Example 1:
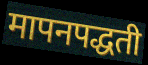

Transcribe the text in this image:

मापनपद्धती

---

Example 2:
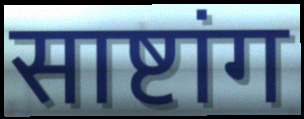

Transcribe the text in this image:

साष्टांग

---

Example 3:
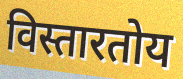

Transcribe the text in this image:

विस्तारतोय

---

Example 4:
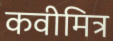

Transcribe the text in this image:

कवीमित्र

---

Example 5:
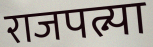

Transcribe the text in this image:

राजपत्न्या